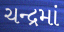
ચન્દ્રમાં